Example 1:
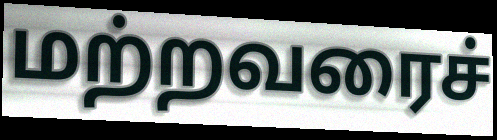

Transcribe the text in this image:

மற்றவரைச்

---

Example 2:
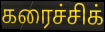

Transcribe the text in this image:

கரைச்சிக்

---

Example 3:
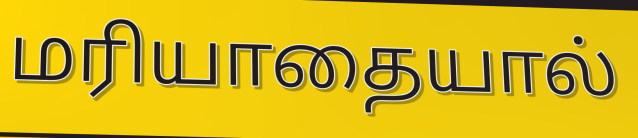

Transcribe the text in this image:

மரியாதையால்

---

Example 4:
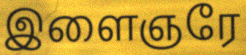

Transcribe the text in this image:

இளைஞரே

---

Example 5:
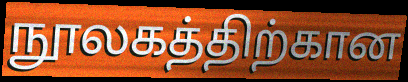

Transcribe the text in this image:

நூலகத்திற்கான